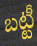
బట్టీ